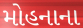
મોહનાના